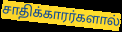
சாதிக்காரர்களால்